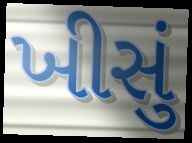
ખીસું